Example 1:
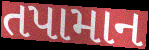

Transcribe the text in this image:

તપામાન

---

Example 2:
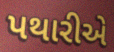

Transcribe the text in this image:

પથારીએ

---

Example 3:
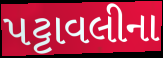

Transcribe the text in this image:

પટ્ટાવલીના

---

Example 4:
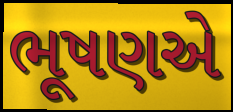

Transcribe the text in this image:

ભૂષણએ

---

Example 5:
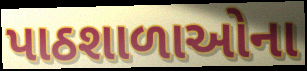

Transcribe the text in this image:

પાઠશાળાઓના